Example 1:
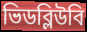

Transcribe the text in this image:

ভিডব্লিউবি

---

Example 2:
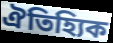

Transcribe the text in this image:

ঐতিহ্যিক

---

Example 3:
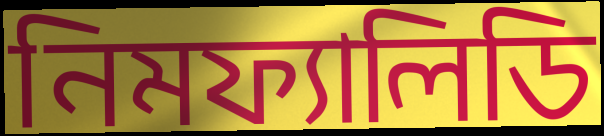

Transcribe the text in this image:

নিমফ্যালিডি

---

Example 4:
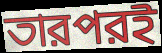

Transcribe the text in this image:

তারপরই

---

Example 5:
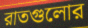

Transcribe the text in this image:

রাতগুলোর